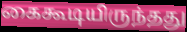
கைகூடியிருந்தது